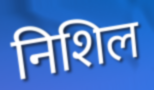
निशिल